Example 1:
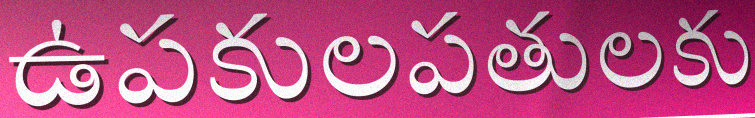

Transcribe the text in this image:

ఉపకులపతులకు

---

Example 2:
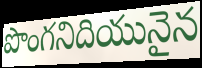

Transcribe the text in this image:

పొంగనిదియునైన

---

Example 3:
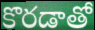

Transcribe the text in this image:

కొరడాతో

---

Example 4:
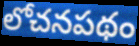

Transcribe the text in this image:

లోచనపథం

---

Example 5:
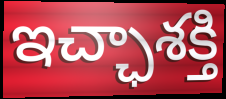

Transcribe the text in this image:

ఇచ్ఛాశక్తి